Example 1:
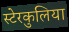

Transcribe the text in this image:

स्टेरकुलिया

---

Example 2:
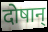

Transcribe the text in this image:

दोषान्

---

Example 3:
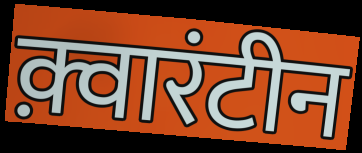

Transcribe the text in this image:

क़्वारंटीन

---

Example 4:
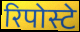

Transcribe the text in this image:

रिपोस्टे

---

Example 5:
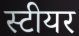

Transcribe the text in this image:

स्टीयर